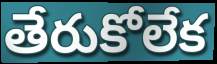
తేరుకోలేక